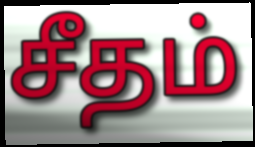
சீதம்